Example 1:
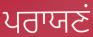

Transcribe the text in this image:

ਪਰਾਯਣਂ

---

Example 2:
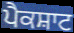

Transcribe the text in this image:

ਪੈਕਸ਼ਾਟ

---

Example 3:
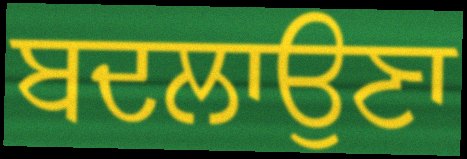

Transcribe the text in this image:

ਬਦਲਾਉਣਾ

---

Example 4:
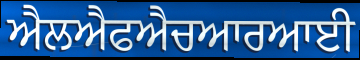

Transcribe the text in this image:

ਐਲਐਫਐਚਆਰਆਈ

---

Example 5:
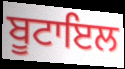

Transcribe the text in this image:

ਬੂਟਾਇਲ